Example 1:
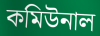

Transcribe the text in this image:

কমিউনাল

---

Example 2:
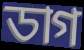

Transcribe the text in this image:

ডাগ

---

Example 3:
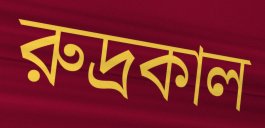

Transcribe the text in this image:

রুদ্রকাল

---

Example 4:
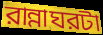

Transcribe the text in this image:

রান্নাঘরটা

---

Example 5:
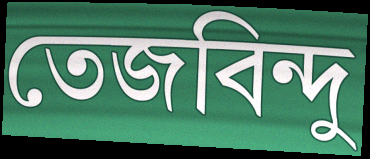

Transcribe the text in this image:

তেজবিন্দু